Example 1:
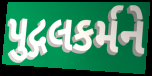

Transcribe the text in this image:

પુદ્ગલકર્મને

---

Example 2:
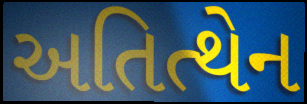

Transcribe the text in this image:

અતિત્થેન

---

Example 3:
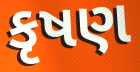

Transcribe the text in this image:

કૃષણ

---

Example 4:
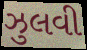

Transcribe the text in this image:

ઝુલવી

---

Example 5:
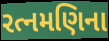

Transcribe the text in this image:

રત્નમણિના